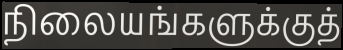
நிலையங்களுக்குத்